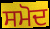
ਸਮੋਦ